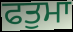
ਫਤੁਮਾ